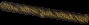
സഹതടവുകാരുമായി